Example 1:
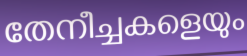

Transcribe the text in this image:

തേനീച്ചകളെയും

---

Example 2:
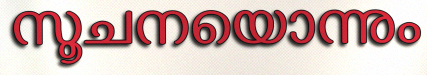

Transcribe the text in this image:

സൂചനയൊന്നും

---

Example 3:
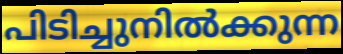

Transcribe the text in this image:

പിടിച്ചുനിൽക്കുന്ന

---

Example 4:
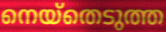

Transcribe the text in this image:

നെയ്തെടുത്ത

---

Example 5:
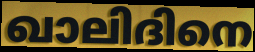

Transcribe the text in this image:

ഖാലിദിനെ